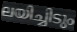
ലയിച്ചിടും